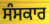
ਸੰਸਕਾਰ